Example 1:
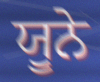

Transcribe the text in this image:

ਯੂਨੇ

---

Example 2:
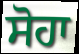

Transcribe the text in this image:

ਸੋਹਾ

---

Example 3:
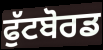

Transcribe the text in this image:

ਫੁੱਟਬੋਰਡ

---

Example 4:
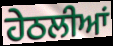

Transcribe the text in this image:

ਹੇਠਲੀਆਂ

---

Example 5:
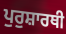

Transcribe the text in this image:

ਪੁਰੁਸ਼ਾਰਥੀ